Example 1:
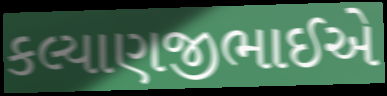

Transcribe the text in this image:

કલ્યાણજીભાઈએ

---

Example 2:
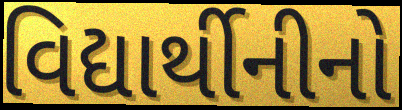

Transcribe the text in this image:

વિદ્યાર્થીનીનો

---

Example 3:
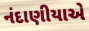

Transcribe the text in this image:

નંદાણીયાએ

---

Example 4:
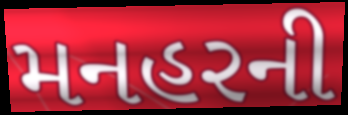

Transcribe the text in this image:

મનહરની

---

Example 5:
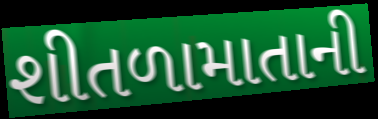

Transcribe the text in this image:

શીતળામાતાની